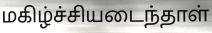
மகிழ்ச்சியடைந்தாள்